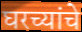
घरच्यांचे